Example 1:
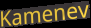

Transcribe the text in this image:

Kamenev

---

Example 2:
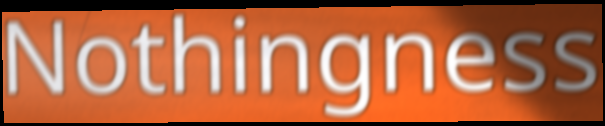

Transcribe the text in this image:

Nothingness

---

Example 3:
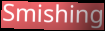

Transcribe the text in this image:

Smishing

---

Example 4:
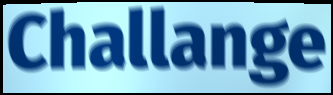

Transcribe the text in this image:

Challange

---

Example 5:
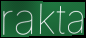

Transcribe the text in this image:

rakta